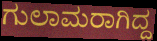
ಗುಲಾಮರಾಗಿದ್ದ